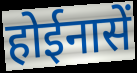
होईनासें